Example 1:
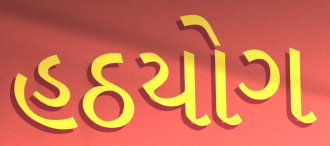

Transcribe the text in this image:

હઠયોગ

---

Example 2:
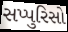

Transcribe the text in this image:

સપ્પુરિસો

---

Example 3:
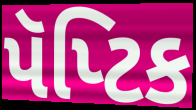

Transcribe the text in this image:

પૅપ્ટિક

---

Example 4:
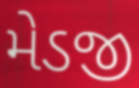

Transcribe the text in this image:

મેડજી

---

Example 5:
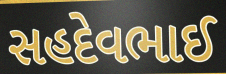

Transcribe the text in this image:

સહદેવભાઈ